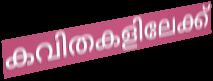
കവിതകളിലേക്ക്